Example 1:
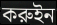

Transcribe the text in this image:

করুইন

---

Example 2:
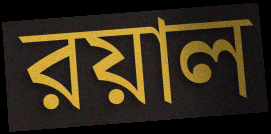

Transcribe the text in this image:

রয়াল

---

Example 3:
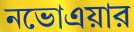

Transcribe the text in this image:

নভোএয়ার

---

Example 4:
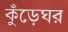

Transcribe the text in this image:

কুঁড়েঘর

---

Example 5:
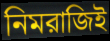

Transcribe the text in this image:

নিমরাজিই